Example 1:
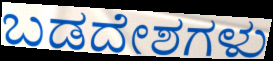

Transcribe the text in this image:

ಬಡದೇಶಗಳು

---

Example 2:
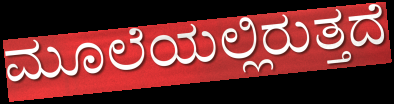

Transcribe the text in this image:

ಮೂಲೆಯಲ್ಲಿರುತ್ತದೆ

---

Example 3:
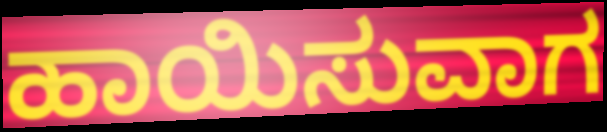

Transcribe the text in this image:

ಹಾಯಿಸುವಾಗ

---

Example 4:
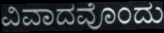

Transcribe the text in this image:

ವಿವಾದವೊಂದು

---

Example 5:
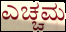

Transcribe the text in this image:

ಎಚ್ಚಮ